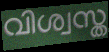
വിശ്വസ്ത